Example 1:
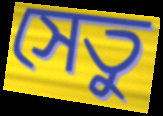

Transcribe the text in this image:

সেতু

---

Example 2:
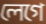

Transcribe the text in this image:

লেগে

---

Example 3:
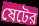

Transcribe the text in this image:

ষেটের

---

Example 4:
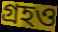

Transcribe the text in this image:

গ্রহও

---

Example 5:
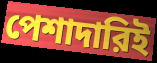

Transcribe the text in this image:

পেশাদারিই